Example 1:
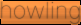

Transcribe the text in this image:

howling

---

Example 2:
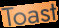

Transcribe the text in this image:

Toast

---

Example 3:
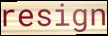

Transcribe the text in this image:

resign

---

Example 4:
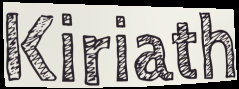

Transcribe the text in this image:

Kiriath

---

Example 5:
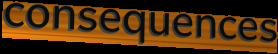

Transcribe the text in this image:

consequences